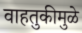
वाहतुकीमुळे